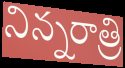
నిన్నరాత్రి